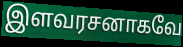
இளவரசனாகவே